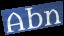
Abn